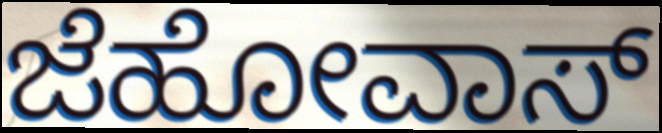
ಜೆಹೋವಾಸ್